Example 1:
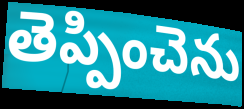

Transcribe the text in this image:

తెప్పించెను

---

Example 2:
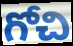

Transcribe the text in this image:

గోచి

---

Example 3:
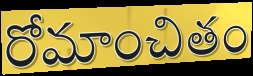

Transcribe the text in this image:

రోమాంచితం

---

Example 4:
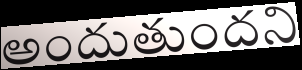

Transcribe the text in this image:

అందుతుందని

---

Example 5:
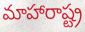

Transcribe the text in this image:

మాహారాష్ట్ర